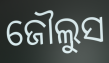
ଜୌଲୁସ